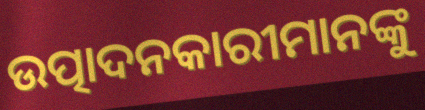
ଉତ୍ପାଦନକାରୀମାନଙ୍କୁ